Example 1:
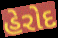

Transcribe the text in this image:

હેરોદ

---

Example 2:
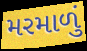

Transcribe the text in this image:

મરમાળું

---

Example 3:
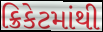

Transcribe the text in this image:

ક્રિકેટમાંથી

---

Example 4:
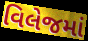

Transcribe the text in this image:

વિલેજમાં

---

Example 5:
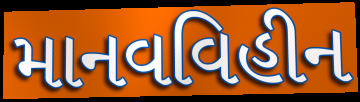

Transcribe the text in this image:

માનવવિહીન